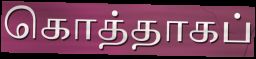
கொத்தாகப்